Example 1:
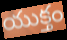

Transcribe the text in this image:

యుక్తం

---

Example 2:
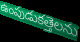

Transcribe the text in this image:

ఉంపుడుకత్తెలను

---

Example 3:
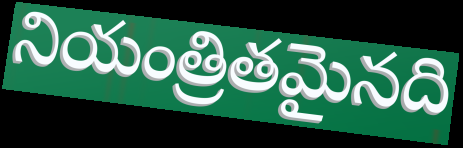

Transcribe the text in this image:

నియంత్రితమైనది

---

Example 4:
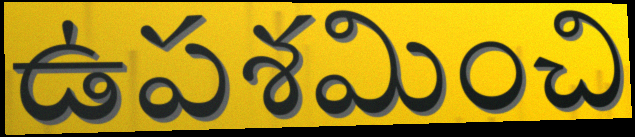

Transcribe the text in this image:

ఉపశమించి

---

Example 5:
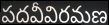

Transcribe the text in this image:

పదవీవిరమణ